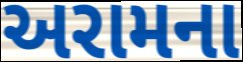
અરામના